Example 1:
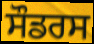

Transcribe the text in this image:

ਸੌਡਰਸ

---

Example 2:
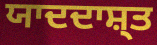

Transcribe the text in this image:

ਯਾਦਦਾਸ਼੍ਤ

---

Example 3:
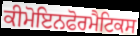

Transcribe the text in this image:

ਕੀਮੋਇਨਫੋਰਮੈਟਿਕਸ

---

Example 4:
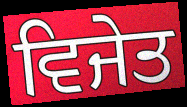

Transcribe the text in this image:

ਵਿਜੇਤ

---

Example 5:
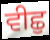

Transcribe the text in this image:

ਵੀਛੁ